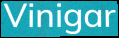
Vinigar